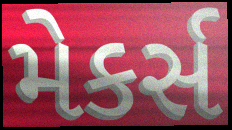
મેકર્સ